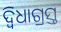
ଦ୍ୱିଧାଗ୍ରସ୍ତ